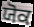
ਯੋਕ